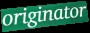
originator